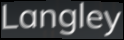
Langley